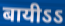
बायीऽऽ